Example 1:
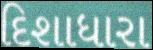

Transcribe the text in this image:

દિશાધારા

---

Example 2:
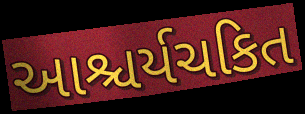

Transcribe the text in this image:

આશ્ચર્યચકિત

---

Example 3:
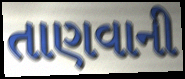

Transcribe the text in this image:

તાણવાની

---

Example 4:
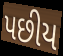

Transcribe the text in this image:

પછીય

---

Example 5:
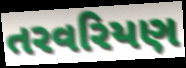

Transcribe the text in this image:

તરવરિયણ